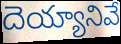
దెయ్యానివే